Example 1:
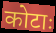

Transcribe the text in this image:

कोटाः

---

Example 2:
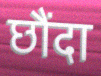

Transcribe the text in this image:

छौंदा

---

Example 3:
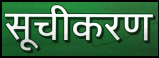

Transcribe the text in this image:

सूचीकरण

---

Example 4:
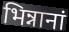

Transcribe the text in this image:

भिन्नानां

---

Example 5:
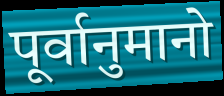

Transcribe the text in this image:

पूर्वानुमानो